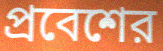
প্রবেশের